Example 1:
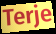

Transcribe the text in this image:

Terje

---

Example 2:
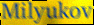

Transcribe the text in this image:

Milyukov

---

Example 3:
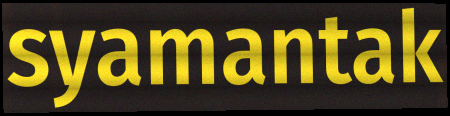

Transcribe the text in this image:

syamantak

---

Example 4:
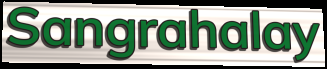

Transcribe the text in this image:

Sangrahalay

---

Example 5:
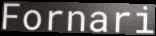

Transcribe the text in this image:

Fornari